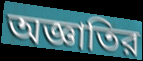
অজ্ঞাতির